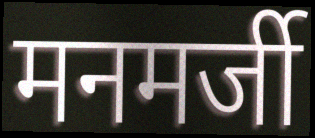
मनमर्जी